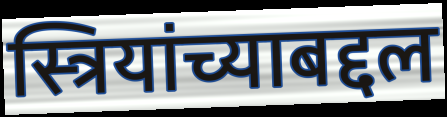
स्त्रियांच्याबद्दल